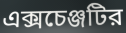
এক্সচেঞ্জটির